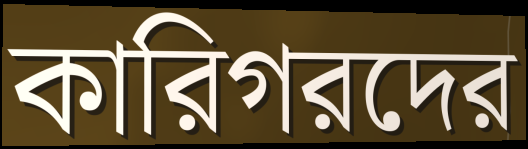
কারিগরদের